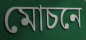
মোচনে